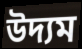
উদ্যম